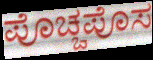
ಪೊಚ್ಚಪೊಸ